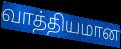
வாத்தியமான